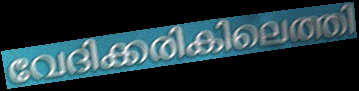
വേദിക്കരികിലെത്തി